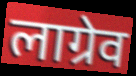
लाग्रेव